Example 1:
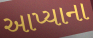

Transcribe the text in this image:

આપ્યાના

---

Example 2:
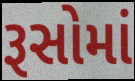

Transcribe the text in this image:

રૂસોમાં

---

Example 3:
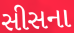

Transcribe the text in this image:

સીસના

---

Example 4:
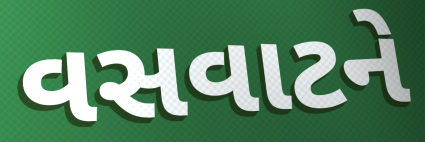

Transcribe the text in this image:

વસવાટને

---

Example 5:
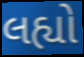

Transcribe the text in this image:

લહ્યો